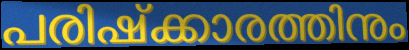
പരിഷ്ക്കാരത്തിനും